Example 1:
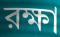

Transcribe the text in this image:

রক্ষা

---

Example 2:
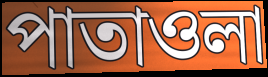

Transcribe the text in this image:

পাতাওলা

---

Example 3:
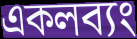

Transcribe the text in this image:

একলব্যং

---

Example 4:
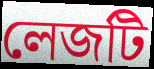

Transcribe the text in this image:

লেজটি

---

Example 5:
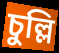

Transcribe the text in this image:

চুল্লি